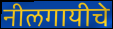
नीलगायीचे